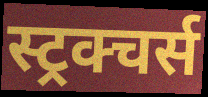
स्ट्रक्चर्स